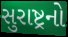
સુરાષ્ટ્રનો